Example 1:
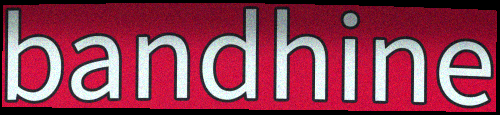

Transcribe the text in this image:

bandhine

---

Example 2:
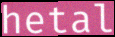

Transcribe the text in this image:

hetal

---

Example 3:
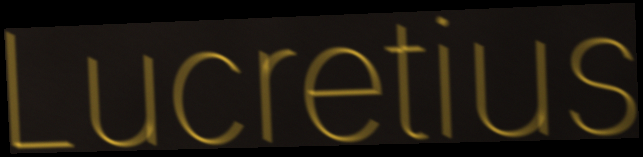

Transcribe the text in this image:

Lucretius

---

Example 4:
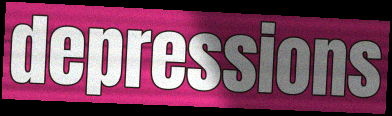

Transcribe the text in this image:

depressions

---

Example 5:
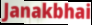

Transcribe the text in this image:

Janakbhai